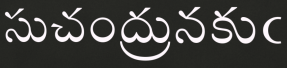
సుచంద్రునకుఁ